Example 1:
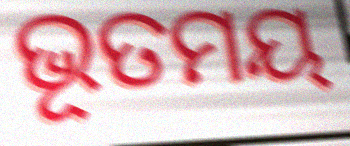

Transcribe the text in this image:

ଭୂତମୟ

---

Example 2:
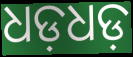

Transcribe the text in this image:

ଧଡ଼ଧଡ଼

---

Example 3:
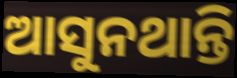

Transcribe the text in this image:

ଆସୁନଥାନ୍ତି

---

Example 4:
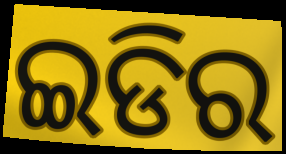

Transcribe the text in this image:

ଇଡିର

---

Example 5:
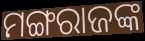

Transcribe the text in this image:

ମଙ୍ଗରାଜଙ୍କ